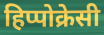
हिप्पोक्रेसी